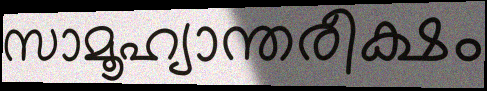
സാമൂഹ്യാന്തരീക്ഷം